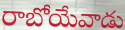
రాబోయేవాడు